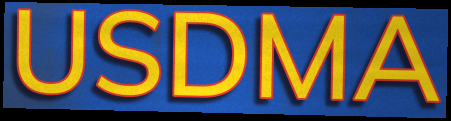
USDMA